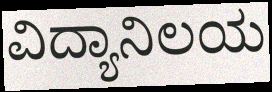
ವಿದ್ಯಾನಿಲಯ